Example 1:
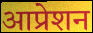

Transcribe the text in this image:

आप्रेशन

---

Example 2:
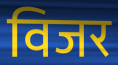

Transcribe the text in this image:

विजर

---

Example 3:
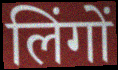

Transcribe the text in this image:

लिंगों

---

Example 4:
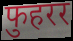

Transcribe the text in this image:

फुहरर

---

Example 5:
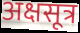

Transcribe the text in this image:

अक्षसूत्र